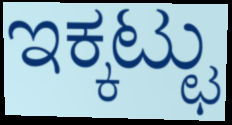
ಇಕ್ಕಟ್ಟು